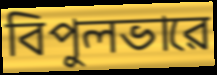
বিপুলভাৱে